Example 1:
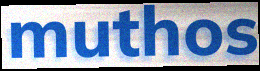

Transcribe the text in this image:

muthos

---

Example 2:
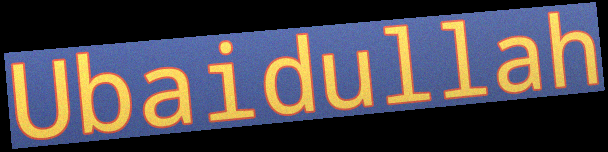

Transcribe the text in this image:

Ubaidullah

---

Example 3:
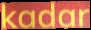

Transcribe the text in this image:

kadar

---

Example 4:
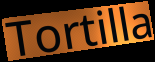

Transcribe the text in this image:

Tortilla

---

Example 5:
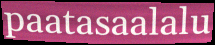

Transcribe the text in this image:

paatasaalalu